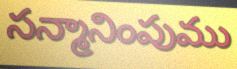
సన్మానింపుము